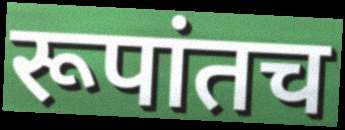
रूपांतच